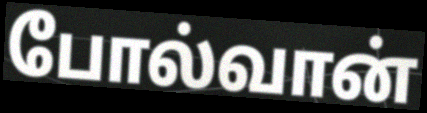
போல்வான்